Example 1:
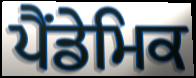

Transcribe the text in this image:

ਪੈਂਡੇਮਿਕ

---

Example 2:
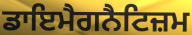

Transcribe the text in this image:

ਡਾਇਮੈਗਨੈਟਿਜ਼ਮ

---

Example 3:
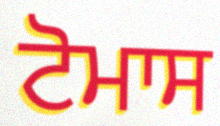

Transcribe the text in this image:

ਟੋਮਾਸ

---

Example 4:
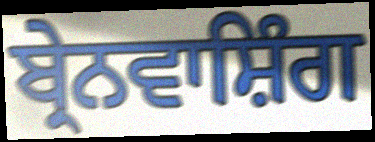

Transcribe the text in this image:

ਬ੍ਰੇਨਵਾਸ਼ਿੰਗ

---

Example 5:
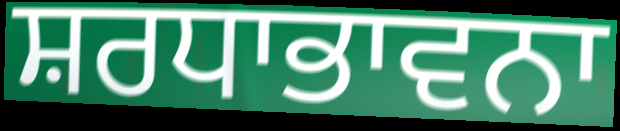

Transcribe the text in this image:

ਸ਼ਰਧਾਭਾਵਨਾ